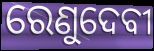
ରେଣୁଦେବୀ